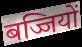
बज्जियों